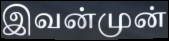
இவன்முன்